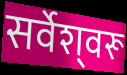
सर्वेश्वरू